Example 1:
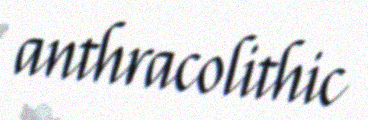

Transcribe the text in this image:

anthracolithic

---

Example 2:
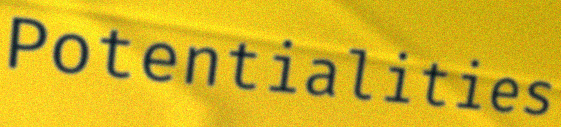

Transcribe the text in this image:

Potentialities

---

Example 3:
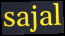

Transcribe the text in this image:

sajal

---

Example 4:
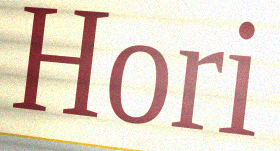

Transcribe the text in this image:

Hori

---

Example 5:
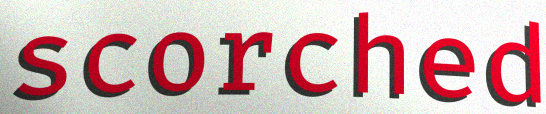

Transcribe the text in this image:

scorched